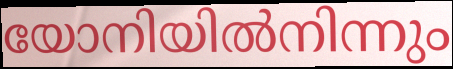
യോനിയിൽനിന്നും